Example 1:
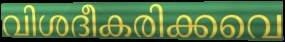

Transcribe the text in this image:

വിശദീകരിക്കവെ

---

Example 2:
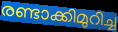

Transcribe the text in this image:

രണ്ടാക്കിമുറിച്ച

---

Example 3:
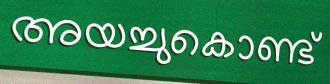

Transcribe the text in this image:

അയച്ചുകൊണ്ട്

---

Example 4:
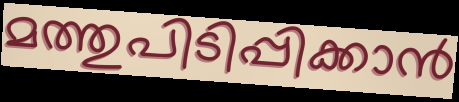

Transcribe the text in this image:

മത്തുപിടിപ്പിക്കാൻ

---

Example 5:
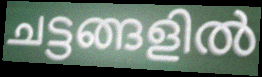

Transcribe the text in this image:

ചട്ടങ്ങളിൽ